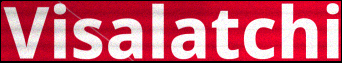
Visalatchi